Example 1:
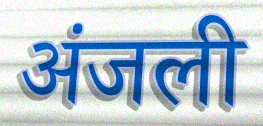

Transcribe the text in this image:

अंजली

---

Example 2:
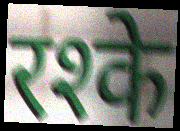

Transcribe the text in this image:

रश्के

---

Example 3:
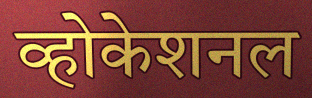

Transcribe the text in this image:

व्होकेशनल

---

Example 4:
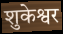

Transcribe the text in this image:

शुकेश्वर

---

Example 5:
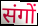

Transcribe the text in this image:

संगों